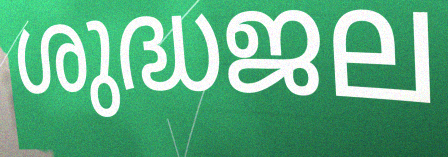
ശുദ്ധജല